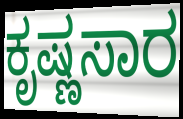
ಕೃಷ್ಣಸಾರ